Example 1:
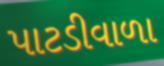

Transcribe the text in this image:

પાટડીવાળા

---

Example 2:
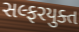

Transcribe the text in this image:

સલ્ફરયુક્ત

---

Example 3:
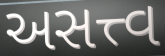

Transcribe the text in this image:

અસત્ત્વ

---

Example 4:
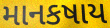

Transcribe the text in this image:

માનકષાય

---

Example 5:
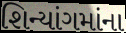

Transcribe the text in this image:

શિન્યાંગમાંના